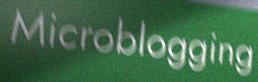
Microblogging